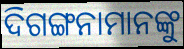
ଦିଗଙ୍ଗନାମାନଙ୍କୁ